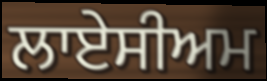
ਲਾਏਸੀਅਮ